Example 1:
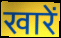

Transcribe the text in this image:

खारें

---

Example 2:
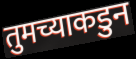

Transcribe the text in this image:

तुमच्याकडुन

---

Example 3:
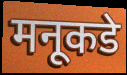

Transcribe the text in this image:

मनूकडे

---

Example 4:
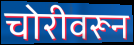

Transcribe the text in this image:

चोरीवरून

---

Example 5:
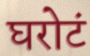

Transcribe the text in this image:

घरोटं